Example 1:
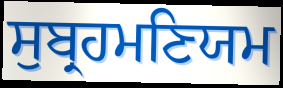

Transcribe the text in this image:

ਸੁਬ੍ਰਹਮਣਿਯਮ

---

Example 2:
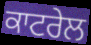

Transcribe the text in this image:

ਕਾਟਰੇਲ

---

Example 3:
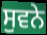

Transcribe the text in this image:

ਸੁਵਨੇ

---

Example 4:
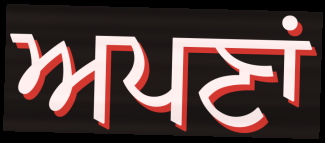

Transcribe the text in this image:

ਅਪਣਾਂ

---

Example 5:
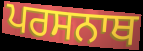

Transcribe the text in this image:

ਪਰਸਨਾਥ